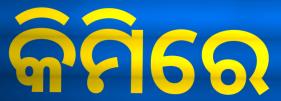
କିମିରେ